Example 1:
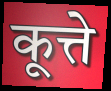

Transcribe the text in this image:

कूत्ते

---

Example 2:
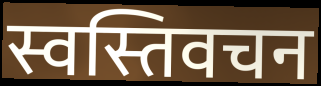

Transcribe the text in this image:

स्वस्तिवचन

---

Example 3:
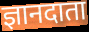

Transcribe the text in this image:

ज्ञानदाता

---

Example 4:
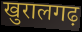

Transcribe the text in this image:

खुरालगढ़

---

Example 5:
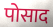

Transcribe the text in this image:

पोसाद